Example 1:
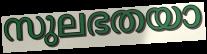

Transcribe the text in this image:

സുലഭതയാ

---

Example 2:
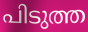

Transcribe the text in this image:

പിടുത്ത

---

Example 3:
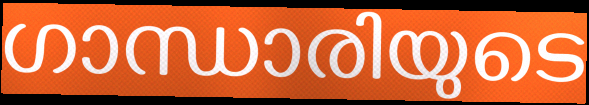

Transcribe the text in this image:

ഗാന്ധാരിയുടെ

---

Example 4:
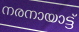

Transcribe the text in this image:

നരനായാട്ട്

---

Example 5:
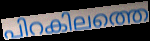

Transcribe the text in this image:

പിറകിലത്തെ